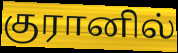
குரானில்